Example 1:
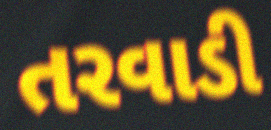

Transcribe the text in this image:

તરવાડી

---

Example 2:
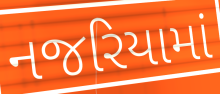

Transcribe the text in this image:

નજરિયામાં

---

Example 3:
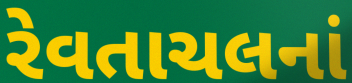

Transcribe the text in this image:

રેવતાચલનાં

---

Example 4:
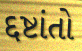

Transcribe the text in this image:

દ્દષ્ટાંતો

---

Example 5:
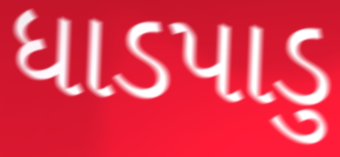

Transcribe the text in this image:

ધાડપાડુ